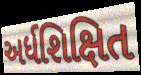
અર્ધશિક્ષિત